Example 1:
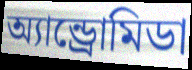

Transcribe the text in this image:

অ্যান্ড্রোমিডা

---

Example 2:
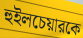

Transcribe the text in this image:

হুইলচেয়ারকে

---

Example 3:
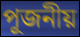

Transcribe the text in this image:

পূজনীয়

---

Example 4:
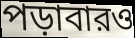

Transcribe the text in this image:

পড়াবারও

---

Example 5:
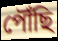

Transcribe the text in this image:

পৌঁছি